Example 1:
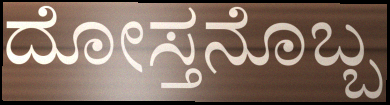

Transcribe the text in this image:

ದೋಸ್ತನೊಬ್ಬ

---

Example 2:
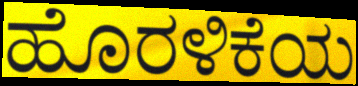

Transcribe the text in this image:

ಹೊರಳಿಕೆಯ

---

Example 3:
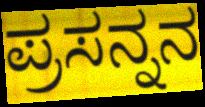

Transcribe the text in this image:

ಪ್ರಸನ್ನನ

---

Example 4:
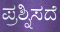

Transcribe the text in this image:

ಪ್ರಶ್ನಿಸದೆ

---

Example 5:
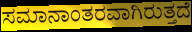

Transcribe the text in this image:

ಸಮಾನಾಂತರವಾಗಿರುತ್ತದೆ